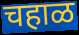
चहाळ